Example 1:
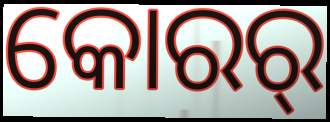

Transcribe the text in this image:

କୋରର୍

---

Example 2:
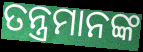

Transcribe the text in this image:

ତନ୍ତ୍ରମାନଙ୍କ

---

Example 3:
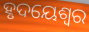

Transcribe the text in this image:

ହୃଦୟେଶ୍ୱର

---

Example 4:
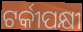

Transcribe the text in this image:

ଟର୍କୀପକ୍ଷୀ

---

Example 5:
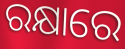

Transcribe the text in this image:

ରକ୍ଷାରେ